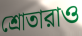
শ্রোতারাও